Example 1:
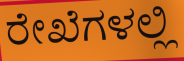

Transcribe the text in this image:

ರೇಖೆಗಳಲ್ಲಿ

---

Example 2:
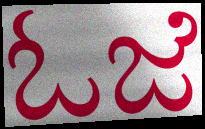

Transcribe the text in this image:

ಓಜೆ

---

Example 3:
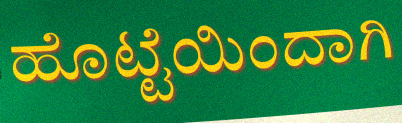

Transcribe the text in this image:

ಹೊಟ್ಟೆಯಿಂದಾಗಿ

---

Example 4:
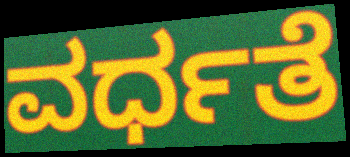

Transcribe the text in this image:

ವರ್ಧತೆ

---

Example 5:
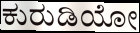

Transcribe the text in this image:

ಕುರುಡಿಯೋ